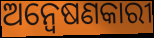
ଅନ୍ୱେଷଣକାରୀ